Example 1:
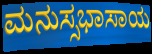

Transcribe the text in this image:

ಮನುಸ್ಸಭಾಸಾಯ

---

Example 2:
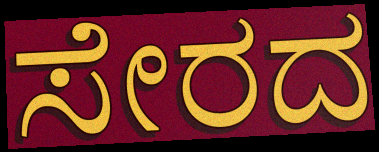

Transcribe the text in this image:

ಸೇರದ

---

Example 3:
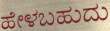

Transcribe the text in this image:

ಹೇಳಬಹುದು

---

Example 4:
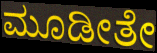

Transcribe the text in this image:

ಮೂಡೀತೇ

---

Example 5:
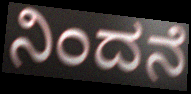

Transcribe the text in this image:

ನಿಂದನೆ